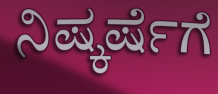
ನಿಷ್ಕರ್ಷೆಗೆ